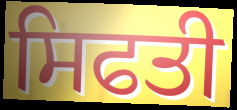
ਸਿਫਤੀ